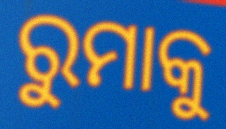
ରୁମାକୁ